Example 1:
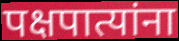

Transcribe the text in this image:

पक्षपात्यांना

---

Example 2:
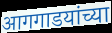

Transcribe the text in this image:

आगगाडयांच्या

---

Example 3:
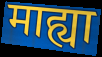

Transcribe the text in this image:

माह्या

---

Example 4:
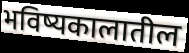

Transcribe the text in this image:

भविष्यकालातील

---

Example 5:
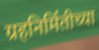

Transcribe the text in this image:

ग्रहनिर्मितीच्या